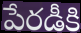
పేరడీకి